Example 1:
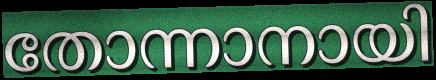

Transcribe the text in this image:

തോന്നാനായി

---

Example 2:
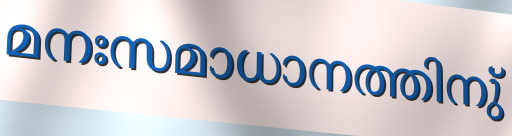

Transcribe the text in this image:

മനഃസമാധാനത്തിനു്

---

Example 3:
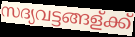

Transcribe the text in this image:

സദ്യവട്ടങ്ങള്ക്ക്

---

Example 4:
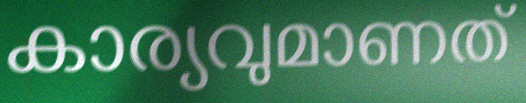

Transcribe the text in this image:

കാര്യവുമാണത്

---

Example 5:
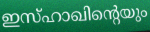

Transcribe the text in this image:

ഇസ്ഹാഖിന്റെയും